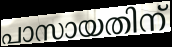
പാസായതിന്